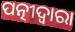
ପତ୍ନୀଦ୍ୱାରା